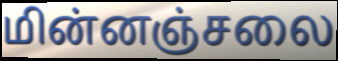
மின்னஞ்சலை